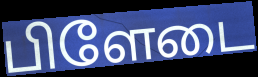
பிளேடை